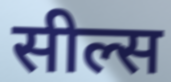
सील्स